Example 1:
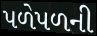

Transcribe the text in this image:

પળેપળની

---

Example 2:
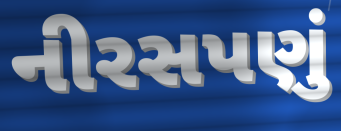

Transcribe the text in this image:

નીરસપણું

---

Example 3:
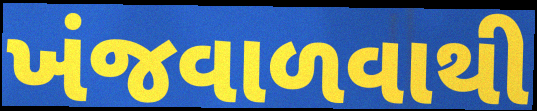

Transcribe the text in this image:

ખંજવાળવાથી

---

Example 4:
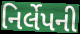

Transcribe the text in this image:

નિર્લેપની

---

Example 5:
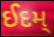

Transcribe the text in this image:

ઈદમ્